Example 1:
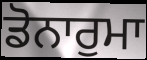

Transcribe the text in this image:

ਡੋਨਾਰੁਮਾ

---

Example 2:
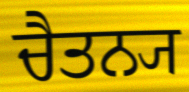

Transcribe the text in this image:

ਚੈਤਨ੍ਯ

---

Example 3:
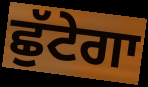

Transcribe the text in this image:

ਛੁੱਟੇਗਾ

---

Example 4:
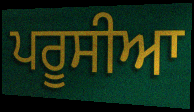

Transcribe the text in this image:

ਪਰੂਸੀਆ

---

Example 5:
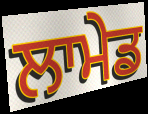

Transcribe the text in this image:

ਲਾਮੇਡ